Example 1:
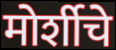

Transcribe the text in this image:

मोर्शीचे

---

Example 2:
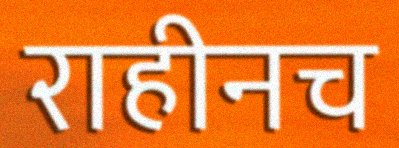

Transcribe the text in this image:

राहीनच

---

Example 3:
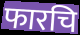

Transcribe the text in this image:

फारचि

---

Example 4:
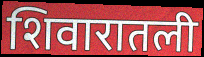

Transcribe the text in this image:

शिवारातली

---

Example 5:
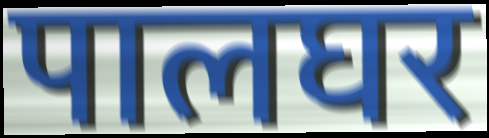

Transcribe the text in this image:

पालघर